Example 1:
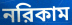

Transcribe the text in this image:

নরিকাম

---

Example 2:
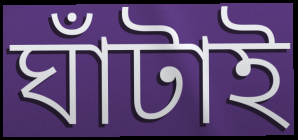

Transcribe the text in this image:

ঘাঁটাই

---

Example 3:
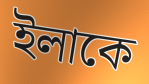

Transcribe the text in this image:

ইলাকে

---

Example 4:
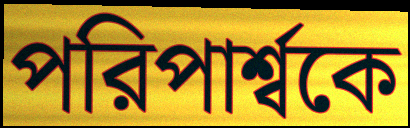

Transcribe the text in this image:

পরিপার্শ্বকে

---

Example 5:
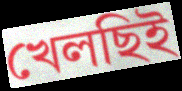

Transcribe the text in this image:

খেলছিই